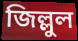
জিল্লুল